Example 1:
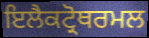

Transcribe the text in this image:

ਇਲੈਕਟ੍ਰੋਥਰਮਲ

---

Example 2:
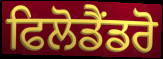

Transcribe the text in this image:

ਫਿਲੋਡੈਂਡਰੋ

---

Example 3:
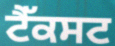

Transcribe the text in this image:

ਟੈੱਕਸਟ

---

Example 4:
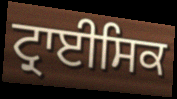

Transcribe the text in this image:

ਟ੍ਰਾਈਸਿਕ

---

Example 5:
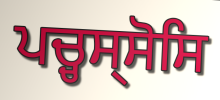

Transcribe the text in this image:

ਪਚ੍ਚਸ੍ਸੋਸਿ